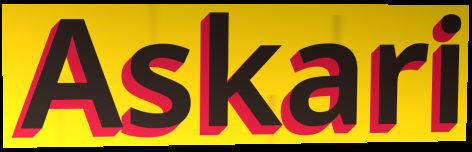
Askari